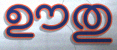
ഊതു